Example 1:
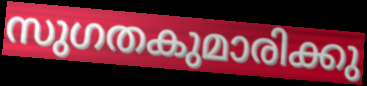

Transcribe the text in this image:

സുഗതകുമാരിക്കു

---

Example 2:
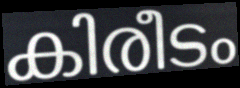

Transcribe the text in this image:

കിരീടം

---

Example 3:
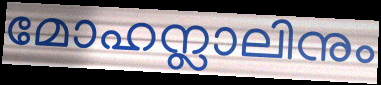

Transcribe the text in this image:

മോഹന്ലാലിനും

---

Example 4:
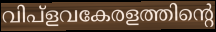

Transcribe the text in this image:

വിപ്ളവകേരളത്തിന്റെ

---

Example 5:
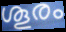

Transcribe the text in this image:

ശൂരം